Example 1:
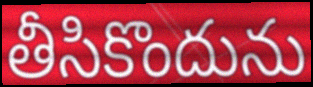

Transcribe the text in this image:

తీసికొందును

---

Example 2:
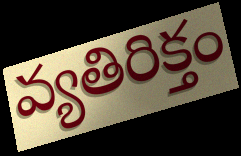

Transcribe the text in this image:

వ్యతిరిక్తం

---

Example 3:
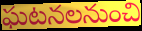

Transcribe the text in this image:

ఘటనలనుంచి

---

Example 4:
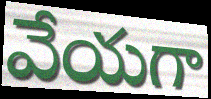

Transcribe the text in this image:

వేయగా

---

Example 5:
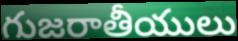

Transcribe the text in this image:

గుజరాతీయులు